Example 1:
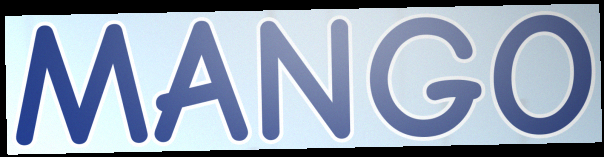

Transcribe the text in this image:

MANGO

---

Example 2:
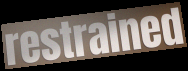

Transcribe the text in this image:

restrained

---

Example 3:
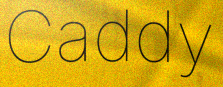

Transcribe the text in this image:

Caddy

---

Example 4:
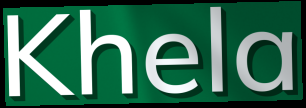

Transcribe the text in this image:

Khela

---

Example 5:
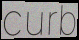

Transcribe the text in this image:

curb